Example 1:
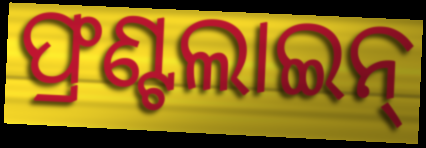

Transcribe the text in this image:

ଫ୍ରଣ୍ଟଲାଇନ୍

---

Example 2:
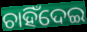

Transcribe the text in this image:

ଚାହିଁଦେଇ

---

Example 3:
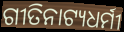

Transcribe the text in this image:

ଗୀତିନାଟ୍ୟଧର୍ମୀ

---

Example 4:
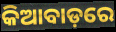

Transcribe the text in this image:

କିଆବାଡ଼ରେ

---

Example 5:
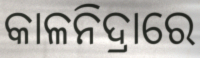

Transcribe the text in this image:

କାଳନିଦ୍ରାରେ